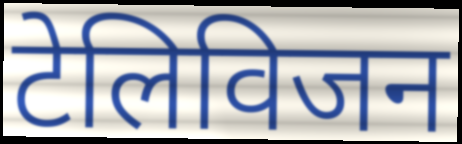
टेलिविजन